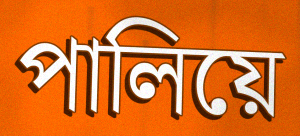
পালিয়ে